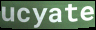
ucyate